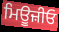
ਮਿਊਜ਼ੀਓ